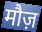
मौज़